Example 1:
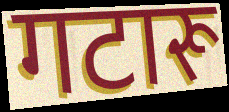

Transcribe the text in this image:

गटारू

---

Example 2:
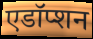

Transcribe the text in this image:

एडॉप्शन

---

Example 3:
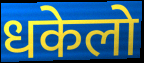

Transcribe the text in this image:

धकेलो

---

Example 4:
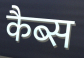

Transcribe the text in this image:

कैब्स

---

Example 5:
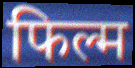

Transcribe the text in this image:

फिल्‍म